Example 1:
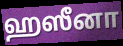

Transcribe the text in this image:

ஹஸீனா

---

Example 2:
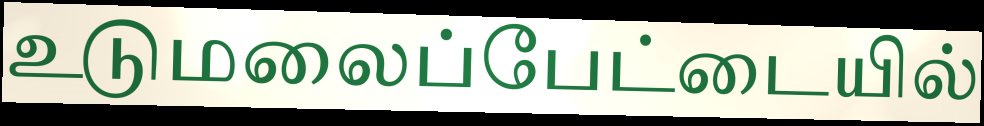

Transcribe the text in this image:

உடுமலைப்பேட்டையில்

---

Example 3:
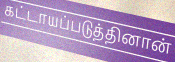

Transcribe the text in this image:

கட்டாயப்படுத்தினான்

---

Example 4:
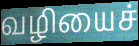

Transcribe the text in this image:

வழியைச்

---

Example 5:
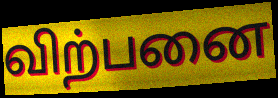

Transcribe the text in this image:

விற்பனை